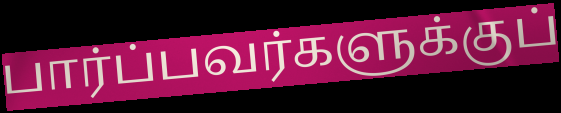
பார்ப்பவர்களுக்குப்